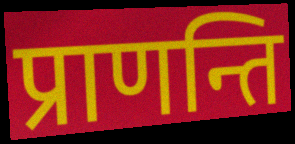
प्राणन्ति